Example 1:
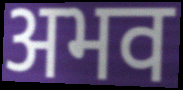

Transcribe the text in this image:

अभव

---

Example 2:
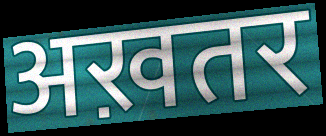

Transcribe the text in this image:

अख़तर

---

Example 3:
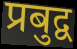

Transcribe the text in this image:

प्रबुद्व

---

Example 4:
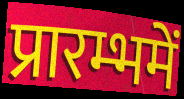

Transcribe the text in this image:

प्रारम्भमें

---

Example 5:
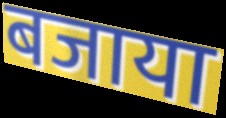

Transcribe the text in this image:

बजाया